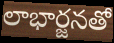
లాభార్జనతో